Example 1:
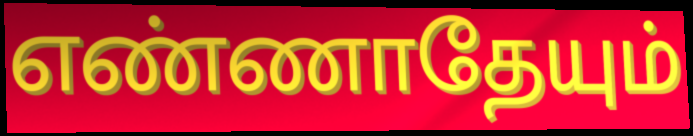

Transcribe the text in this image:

எண்ணாதேயும்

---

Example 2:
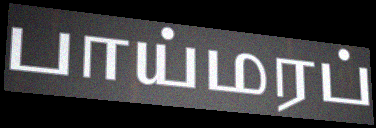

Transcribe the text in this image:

பாய்மரப்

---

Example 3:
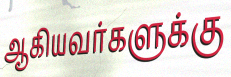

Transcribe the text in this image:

ஆகியவர்களுக்கு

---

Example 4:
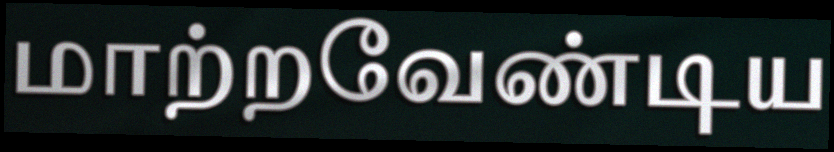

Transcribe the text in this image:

மாற்றவேண்டிய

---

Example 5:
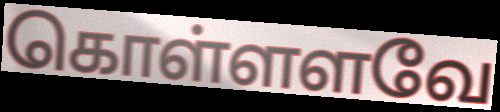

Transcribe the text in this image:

கொள்ளளவே